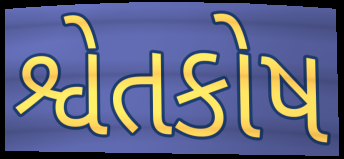
શ્વેતકોષ